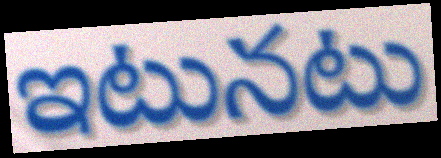
ఇటునటు